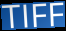
TIFF